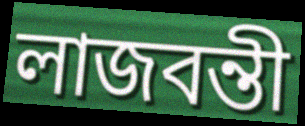
লাজবন্তী